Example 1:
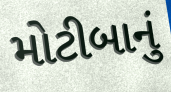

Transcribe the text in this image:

મોટીબાનું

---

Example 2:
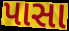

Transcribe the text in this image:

પાસા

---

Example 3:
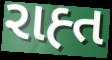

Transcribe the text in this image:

રાહ્ત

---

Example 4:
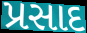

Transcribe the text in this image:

પ્રસાદ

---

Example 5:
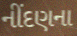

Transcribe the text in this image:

નીંદણના